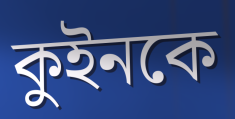
কুইনকে